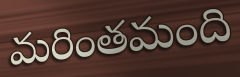
మరింతమంది